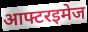
आफ्टरइमेज